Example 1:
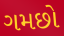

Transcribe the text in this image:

ગમછો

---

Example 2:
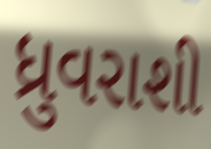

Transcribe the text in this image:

ધ્રુવરાશી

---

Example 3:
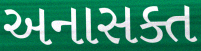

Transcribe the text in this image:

અનાસક્ત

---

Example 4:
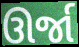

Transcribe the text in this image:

ઊર્જા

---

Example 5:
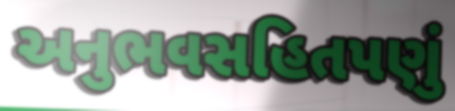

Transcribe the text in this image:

અનુભવસહિતપણું